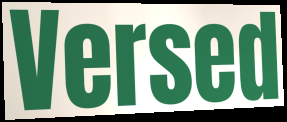
Versed